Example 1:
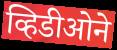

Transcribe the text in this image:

व्हिडीओने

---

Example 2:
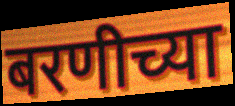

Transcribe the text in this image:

बरणीच्या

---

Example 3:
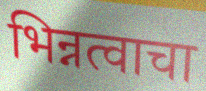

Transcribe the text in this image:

भिन्नत्वाचा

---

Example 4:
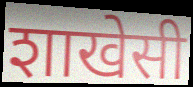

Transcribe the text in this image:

शाखेसी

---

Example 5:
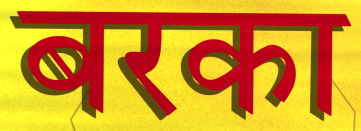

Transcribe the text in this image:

बरका